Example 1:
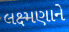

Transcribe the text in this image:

લક્ષ્મણાને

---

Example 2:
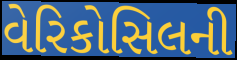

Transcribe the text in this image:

વેરિકોસિલની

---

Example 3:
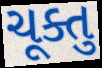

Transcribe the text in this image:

ચૂક્તુ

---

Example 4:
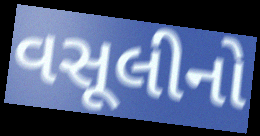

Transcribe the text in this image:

વસૂલીનો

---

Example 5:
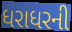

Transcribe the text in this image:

ધરાધરની